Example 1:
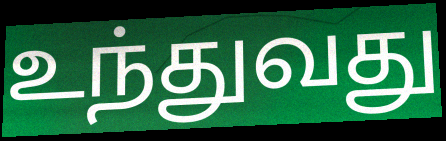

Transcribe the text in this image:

உந்துவது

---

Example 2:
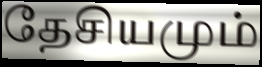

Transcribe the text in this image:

தேசியமும்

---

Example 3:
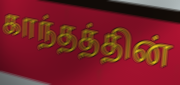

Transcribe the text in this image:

காந்தத்தின்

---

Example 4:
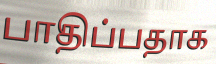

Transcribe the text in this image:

பாதிப்பதாக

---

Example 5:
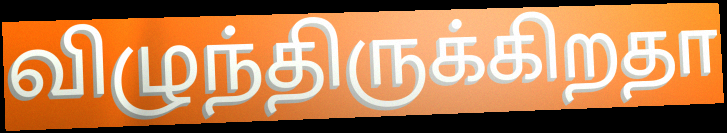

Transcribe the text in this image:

விழுந்திருக்கிறதா